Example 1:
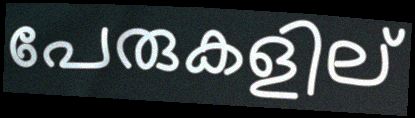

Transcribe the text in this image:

പേരുകളില്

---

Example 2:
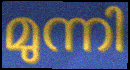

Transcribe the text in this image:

മുന്നി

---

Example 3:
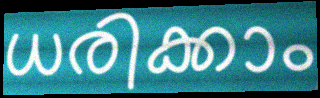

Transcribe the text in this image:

ധരിക്കാം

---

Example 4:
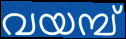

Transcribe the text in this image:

വയമ്പ്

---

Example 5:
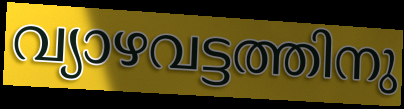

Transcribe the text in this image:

വ്യാഴവട്ടത്തിനു